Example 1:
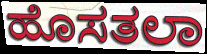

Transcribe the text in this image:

ಹೊಸತಲಾ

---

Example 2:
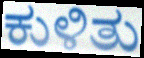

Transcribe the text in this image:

ಕುಳಿತು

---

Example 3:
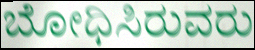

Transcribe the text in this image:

ಬೋಧಿಸಿರುವರು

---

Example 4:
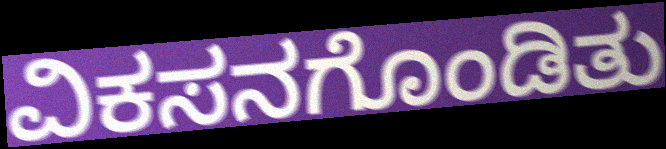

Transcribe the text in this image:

ವಿಕಸನಗೊಂಡಿತು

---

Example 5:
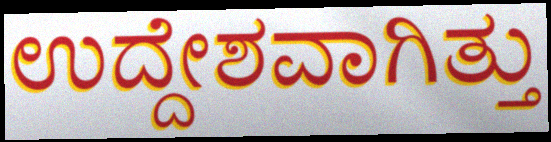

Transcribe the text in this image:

ಉದ್ದೇಶವಾಗಿತ್ತು